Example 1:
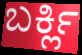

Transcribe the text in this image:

ಬರ್ಕ್ಲಿ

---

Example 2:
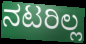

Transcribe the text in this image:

ನಟರಿಲ್ಲ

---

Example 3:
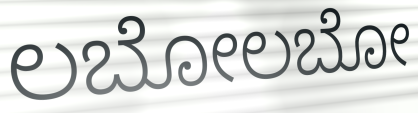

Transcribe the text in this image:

ಲಬೋಲಬೋ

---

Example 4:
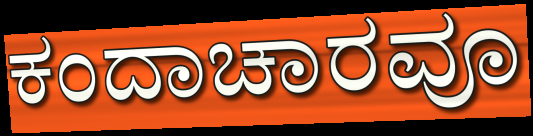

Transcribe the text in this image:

ಕಂದಾಚಾರವೂ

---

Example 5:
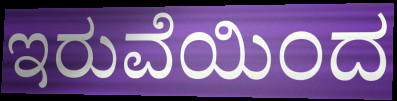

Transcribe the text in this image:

ಇರುವೆಯಿಂದ